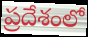
ప్రదేశంలో